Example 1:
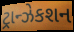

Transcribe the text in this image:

ટ્રાન્ઝેકશન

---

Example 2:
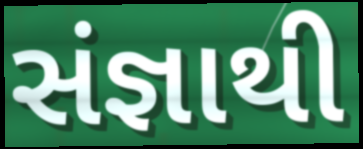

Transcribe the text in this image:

સંજ્ઞાથી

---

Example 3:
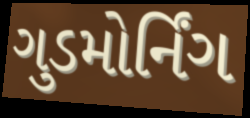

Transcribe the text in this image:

ગુડમોર્નિંગ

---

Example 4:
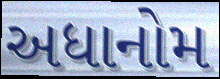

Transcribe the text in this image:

અધાનોમ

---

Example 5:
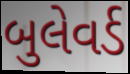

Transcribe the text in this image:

બુલેવર્ડ